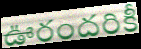
ఊరందరికీ